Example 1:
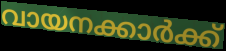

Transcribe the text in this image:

വായനക്കാർക്ക്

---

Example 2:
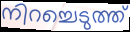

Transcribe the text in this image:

നിറച്ചെടുത്ത്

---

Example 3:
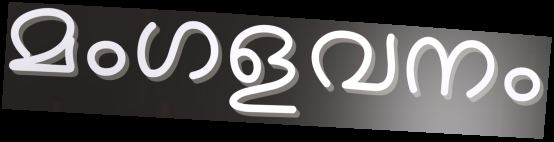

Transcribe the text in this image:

മംഗളവനം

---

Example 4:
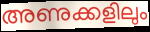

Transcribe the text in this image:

അണുക്കളിലും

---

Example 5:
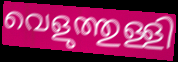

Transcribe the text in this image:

വെളുത്തുള്ളി